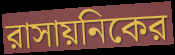
রাসায়নিকের